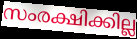
സംരക്ഷിക്കില്ല